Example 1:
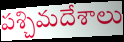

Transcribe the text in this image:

పశ్చిమదేశాలు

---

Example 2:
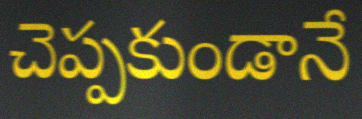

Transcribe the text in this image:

చెప్పకుండానే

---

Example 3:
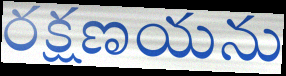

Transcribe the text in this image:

రక్షణయను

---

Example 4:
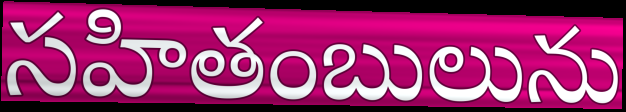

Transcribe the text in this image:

సహితంబులును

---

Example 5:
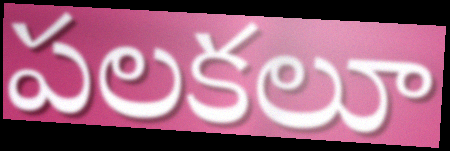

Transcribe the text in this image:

పలకలూ